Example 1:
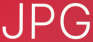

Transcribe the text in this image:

JPG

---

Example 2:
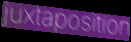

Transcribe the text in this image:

juxtaposition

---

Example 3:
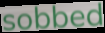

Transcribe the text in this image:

sobbed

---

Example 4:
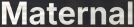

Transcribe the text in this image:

Maternal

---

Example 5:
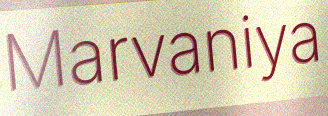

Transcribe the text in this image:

Marvaniya